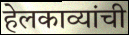
हेलकाव्यांची